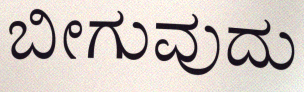
ಬೀಗುವುದು